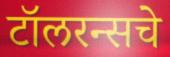
टॉलरन्सचे